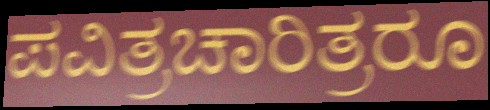
ಪವಿತ್ರಚಾರಿತ್ರರೂ